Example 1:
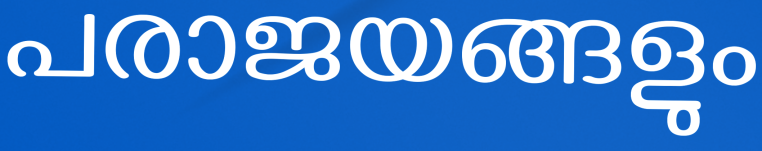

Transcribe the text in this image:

പരാജയങ്ങളും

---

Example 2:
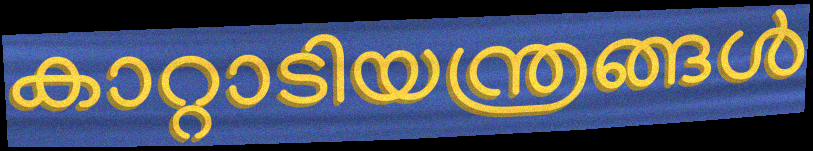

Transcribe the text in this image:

കാറ്റാടിയന്ത്രങ്ങൾ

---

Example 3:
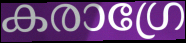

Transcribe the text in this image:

കരാഗ്രേ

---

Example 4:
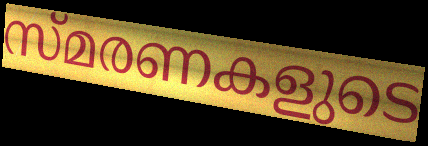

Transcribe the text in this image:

സ്മരണകളുടെ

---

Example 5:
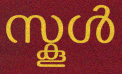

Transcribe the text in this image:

സ്കൂൾ